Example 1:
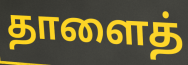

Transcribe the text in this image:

தாளைத்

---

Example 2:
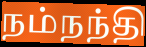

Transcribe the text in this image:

நம்நந்தி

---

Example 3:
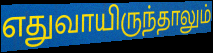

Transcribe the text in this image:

எதுவாயிருந்தாலும்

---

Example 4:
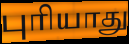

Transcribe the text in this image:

புரியாது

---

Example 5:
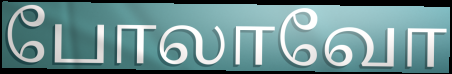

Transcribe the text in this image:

போலாவோ